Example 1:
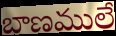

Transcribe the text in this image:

బాణములే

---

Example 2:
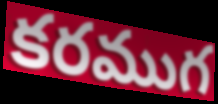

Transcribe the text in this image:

కరముగ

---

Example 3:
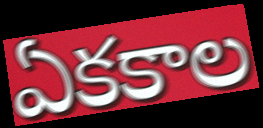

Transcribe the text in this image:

ఏకకాల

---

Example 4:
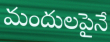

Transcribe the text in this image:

మందులపైనే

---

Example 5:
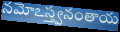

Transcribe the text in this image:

నమోఽస్త్వనంతాయ